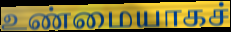
உண்மையாகச்